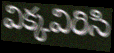
విక్కవిరిసి